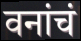
वनांचं